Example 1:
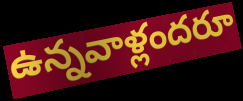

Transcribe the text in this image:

ఉన్నవాళ్లందరూ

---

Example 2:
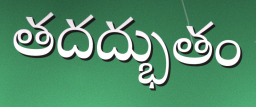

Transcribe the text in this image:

తదద్భుతం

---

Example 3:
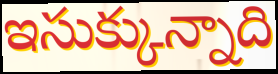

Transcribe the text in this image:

ఇసుక్కున్నాది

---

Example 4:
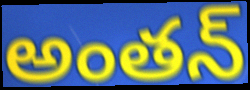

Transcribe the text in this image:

అంతన్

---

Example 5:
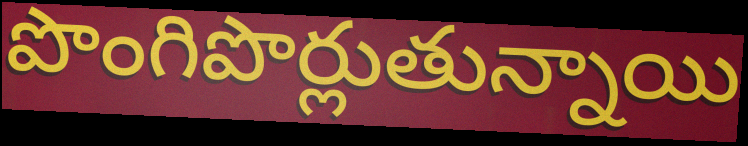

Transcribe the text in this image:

పొంగిపొర్లుతున్నాయి